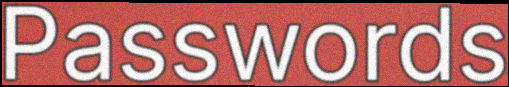
Passwords